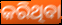
କରିଥିବା